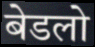
बेडलो